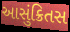
આસુંક્રિતસ